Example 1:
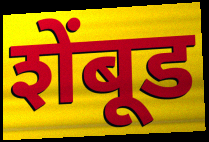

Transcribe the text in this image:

शेंबूड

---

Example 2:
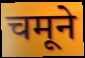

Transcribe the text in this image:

चमूने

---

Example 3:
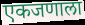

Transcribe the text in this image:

एकजणाला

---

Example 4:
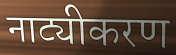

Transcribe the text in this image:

नाट्यीकरण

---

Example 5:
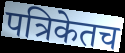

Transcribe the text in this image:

पत्रिकेतच